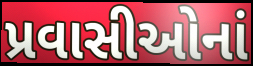
પ્રવાસીઓનાં